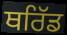
ਥਰਿੱਡ